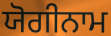
ਯੋਗੀਨਾਮ